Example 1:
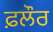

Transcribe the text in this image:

ਫ਼ਲੌਰ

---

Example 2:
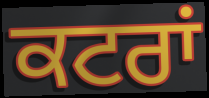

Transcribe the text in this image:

ਕਟਰਾਂ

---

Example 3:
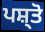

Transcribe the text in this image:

ਪਸ਼੍ਤੋ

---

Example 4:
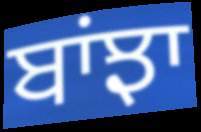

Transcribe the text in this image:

ਬਾਂਝਾ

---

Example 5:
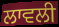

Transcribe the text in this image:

ਲਾਵਲੀ